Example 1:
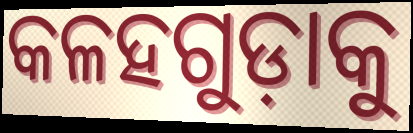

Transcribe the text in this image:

କଳହଗୁଡ଼ାକୁ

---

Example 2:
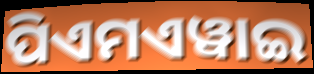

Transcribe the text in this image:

ପିଏମଏୱାଇ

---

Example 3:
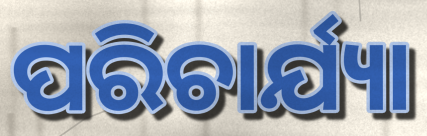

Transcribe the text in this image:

ପରିଚାର୍ଯ୍ୟା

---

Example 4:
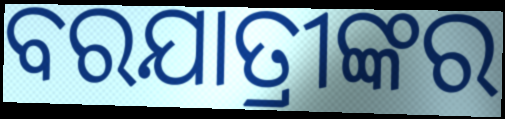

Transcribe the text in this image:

ବରଯାତ୍ରୀଙ୍କର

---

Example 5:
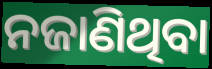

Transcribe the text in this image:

ନଜାଣିଥିବା